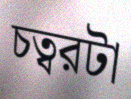
চত্বরটা